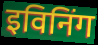
इविनिंग